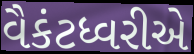
વૈકંટધ્વરીએ